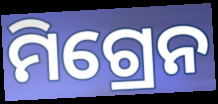
ମିଗ୍ରେନ